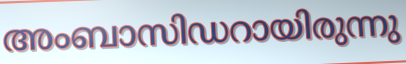
അംബാസിഡറായിരുന്നു